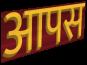
आपस